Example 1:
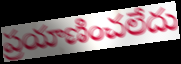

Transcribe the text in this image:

ప్రయాణించలేదు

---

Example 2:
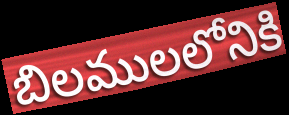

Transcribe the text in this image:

బిలములలోనికి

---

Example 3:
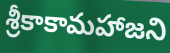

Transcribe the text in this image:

శ్రీకాకామహాజని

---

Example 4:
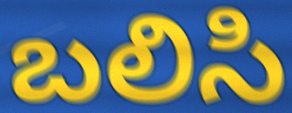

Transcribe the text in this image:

బలిసి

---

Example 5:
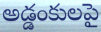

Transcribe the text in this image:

అడ్డంకులపై